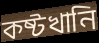
কষ্টখানি